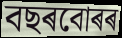
বছৰবোৰৰ